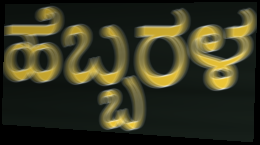
ಹೆಬ್ಬರಳ